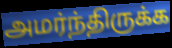
அமர்ந்திருக்க